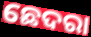
ଛେଦରା